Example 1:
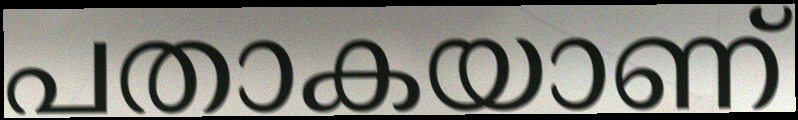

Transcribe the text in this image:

പതാകയാണ്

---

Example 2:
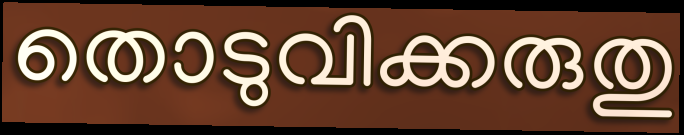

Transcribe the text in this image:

തൊടുവിക്കരുതു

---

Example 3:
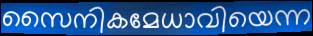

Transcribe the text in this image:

സൈനികമേധാവിയെന്ന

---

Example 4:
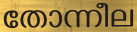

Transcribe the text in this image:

തോന്നീല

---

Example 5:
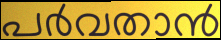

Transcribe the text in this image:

പർവതാൻ